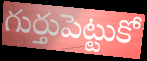
గుర్తుపెట్టుకో